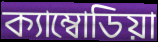
ক্যাম্বোডিয়া